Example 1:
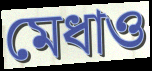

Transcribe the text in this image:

মেধাও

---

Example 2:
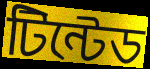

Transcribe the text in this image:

টিন্টেড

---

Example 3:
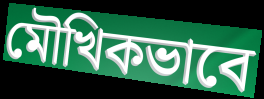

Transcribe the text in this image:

মৌখিকভাবে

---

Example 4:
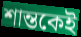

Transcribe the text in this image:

শান্তকেই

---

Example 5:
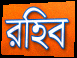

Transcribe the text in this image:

রহিব